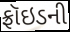
ફ્રૉઇડની